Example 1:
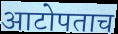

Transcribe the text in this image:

आटोपताच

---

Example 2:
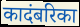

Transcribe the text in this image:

कादंबरिका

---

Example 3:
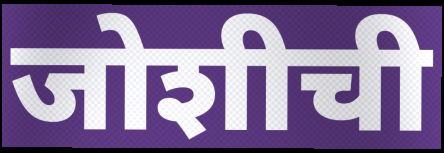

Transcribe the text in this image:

जोशीची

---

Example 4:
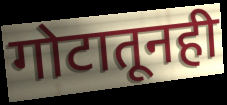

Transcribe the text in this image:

गोटातूनही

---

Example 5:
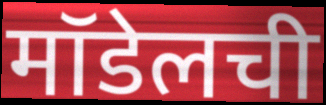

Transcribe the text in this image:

मॉडेलची